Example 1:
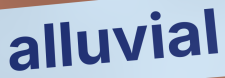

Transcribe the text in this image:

alluvial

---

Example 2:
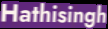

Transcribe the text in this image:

Hathisingh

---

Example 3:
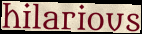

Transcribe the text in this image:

hilarious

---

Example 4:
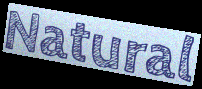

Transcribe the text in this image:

Natural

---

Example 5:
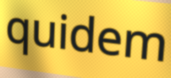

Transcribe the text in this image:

quidem